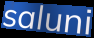
saluni